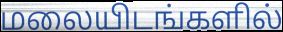
மலையிடங்களில்